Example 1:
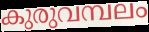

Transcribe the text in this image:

കുരുവമ്പലം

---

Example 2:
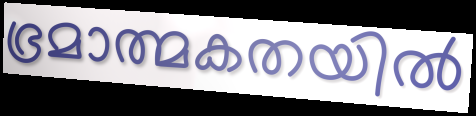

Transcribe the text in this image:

ഭ്രമാത്മകതയിൽ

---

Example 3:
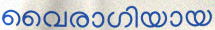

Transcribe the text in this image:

വൈരാഗിയായ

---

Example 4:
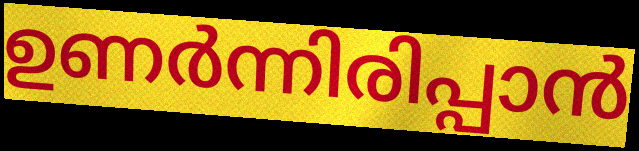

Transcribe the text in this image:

ഉണർന്നിരിപ്പാൻ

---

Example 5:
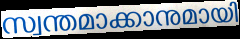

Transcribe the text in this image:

സ്വന്തമാക്കാനുമായി